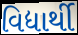
વિદ્યાર્થી